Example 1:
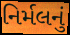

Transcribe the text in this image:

નિર્મલનું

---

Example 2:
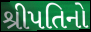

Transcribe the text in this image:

શ્રીપતિનો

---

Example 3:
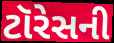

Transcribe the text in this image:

ટૉરેસની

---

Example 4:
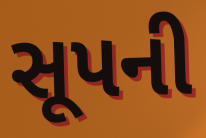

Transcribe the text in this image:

સૂપની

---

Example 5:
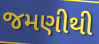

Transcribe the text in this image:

જમણીથી